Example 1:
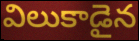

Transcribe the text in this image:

విలుకాడైన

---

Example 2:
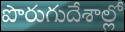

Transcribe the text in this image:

పొరుగుదేశాల్లో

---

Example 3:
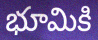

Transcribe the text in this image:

భూమికి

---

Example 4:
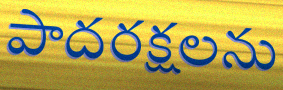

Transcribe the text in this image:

పాదరక్షలను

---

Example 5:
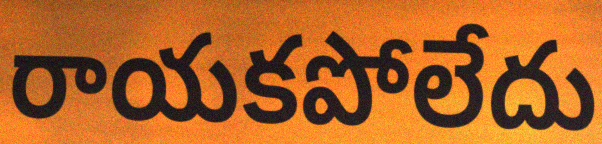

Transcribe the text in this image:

రాయకపోలేదు